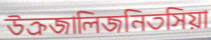
উক্রজালিজনিতসিয়া